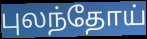
புலந்தோய்